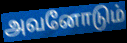
அவனோடும்